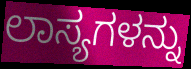
ಲಾಸ್ಯಗಳನ್ನು